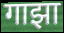
गाझा